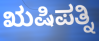
ಋಷಿಪತ್ನಿ